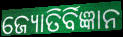
ଜ୍ୟୋତିର୍ବିଜ୍ଞାନ